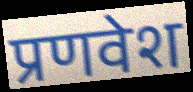
प्रणवेश